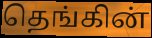
தெங்கின்